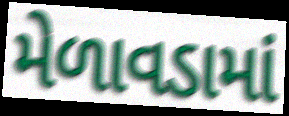
મેળાવડામાં